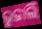
ଭୁଜାଲି